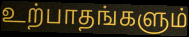
உற்பாதங்களும்